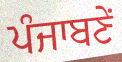
ਪੰਜਾਬਣੇਂ